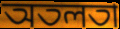
অতলতা